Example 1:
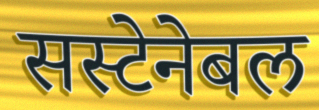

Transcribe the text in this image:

सस्टेनेबल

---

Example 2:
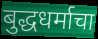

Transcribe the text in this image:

बुद्धधर्माचा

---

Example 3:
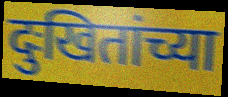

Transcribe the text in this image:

दुःखितांच्या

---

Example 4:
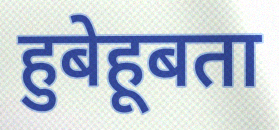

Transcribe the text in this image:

हुबेहूबता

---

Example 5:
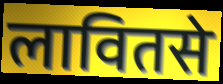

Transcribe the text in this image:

लावितसे